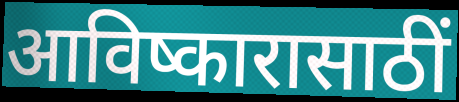
आविष्कारासाठीं